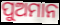
ପୁଅମାନ